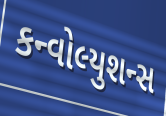
કન્વોલ્યુશન્સ